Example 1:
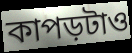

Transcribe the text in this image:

কাপড়টাও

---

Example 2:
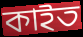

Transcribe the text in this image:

কাইত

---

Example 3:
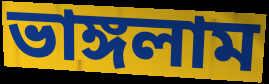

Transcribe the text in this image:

ভাঙ্গলাম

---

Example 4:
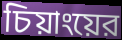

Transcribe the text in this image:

চিয়াংয়ের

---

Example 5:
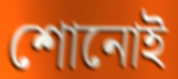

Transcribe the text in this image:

শোনোই